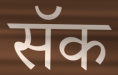
सॅक